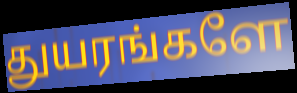
துயரங்களே